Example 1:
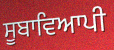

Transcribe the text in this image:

ਸੂਬਾਵਿਆਪੀ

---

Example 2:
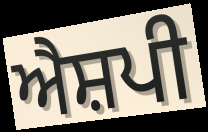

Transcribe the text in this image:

ਐਸ਼ਪੀ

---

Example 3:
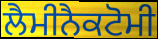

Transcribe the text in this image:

ਲੈਮੀਨੈਕਟੋਮੀ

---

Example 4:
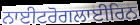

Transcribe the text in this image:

ਨਾਈਟਰੋਗਲਾਈਰਿਨ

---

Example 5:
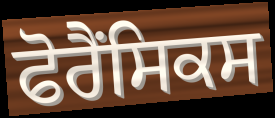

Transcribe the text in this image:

ਫੋਰੈਂਸਿਕਸ